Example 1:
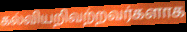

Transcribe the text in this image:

கல்வியறிவற்றவர்களாக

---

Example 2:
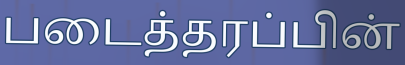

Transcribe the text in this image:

படைத்தரப்பின்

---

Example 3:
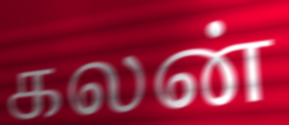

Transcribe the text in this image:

கலன்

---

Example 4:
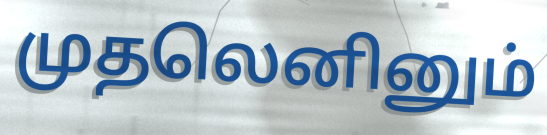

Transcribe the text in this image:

முதலெனினும்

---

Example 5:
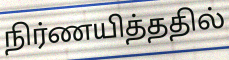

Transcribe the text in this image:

நிர்ணயித்ததில்